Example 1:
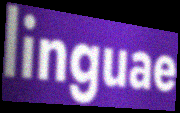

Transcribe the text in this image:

linguae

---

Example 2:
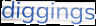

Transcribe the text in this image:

diggings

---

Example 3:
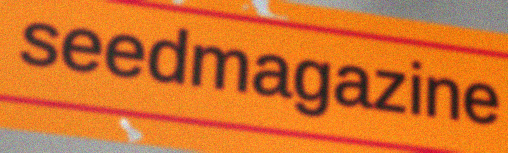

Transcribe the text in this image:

seedmagazine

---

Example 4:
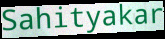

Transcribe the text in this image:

Sahityakar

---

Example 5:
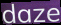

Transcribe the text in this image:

daze